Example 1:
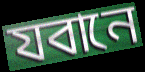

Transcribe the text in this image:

যবানে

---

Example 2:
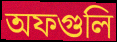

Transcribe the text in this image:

অফগুলি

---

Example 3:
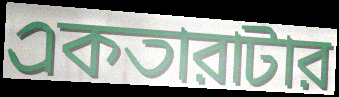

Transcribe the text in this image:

একতারাটার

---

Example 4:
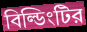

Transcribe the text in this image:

বিল্ডিংটির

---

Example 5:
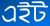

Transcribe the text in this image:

এইট